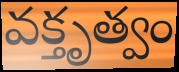
వక్తృత్వం